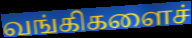
வங்கிகளைச்